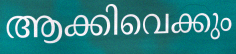
ആക്കിവെക്കും